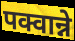
पक्वान्ने